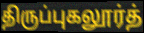
திருப்புகலூர்த்